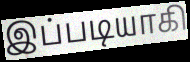
இப்படியாகி